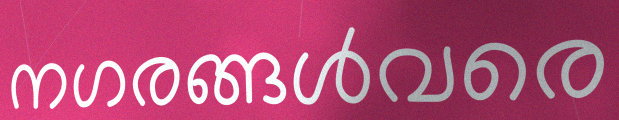
നഗരങ്ങൾവരെ